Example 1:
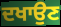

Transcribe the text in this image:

ਦਖਾਉਣ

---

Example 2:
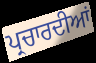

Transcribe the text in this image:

ਪ੍ਰਚਾਰਦੀਆਂ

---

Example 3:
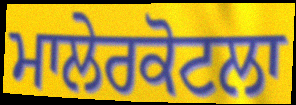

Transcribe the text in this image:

ਮਾਲੇਰਕੋਟਲਾ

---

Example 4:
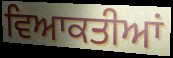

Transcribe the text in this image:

ਵਿਆਕਤੀਆਂ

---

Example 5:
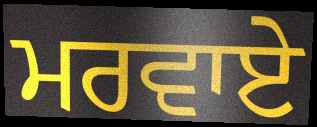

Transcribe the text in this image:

ਮਰਵਾਏ